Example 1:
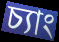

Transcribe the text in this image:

চ্যাং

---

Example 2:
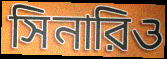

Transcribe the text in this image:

সিনারিও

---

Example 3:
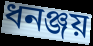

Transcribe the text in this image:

ধনঞ্জয়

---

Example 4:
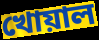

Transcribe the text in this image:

খোয়াল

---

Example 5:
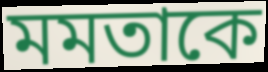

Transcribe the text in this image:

মমতাকে